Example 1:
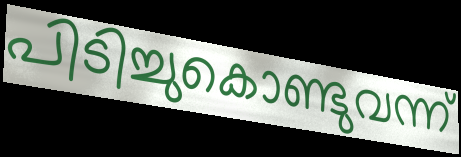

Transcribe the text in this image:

പിടിച്ചുകൊണ്ടുവന്ന്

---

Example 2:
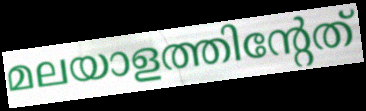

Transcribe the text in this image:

മലയാളത്തിന്റേത്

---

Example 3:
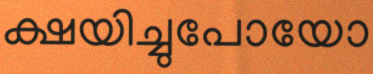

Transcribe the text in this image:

ക്ഷയിച്ചുപോയോ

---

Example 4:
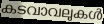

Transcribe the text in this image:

കടവാവലുകൾ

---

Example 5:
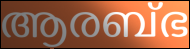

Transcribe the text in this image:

ആരബ്ഭ